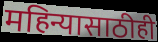
महिन्यासाठीही